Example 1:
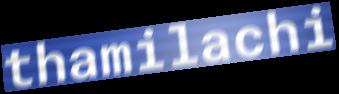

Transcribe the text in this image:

thamilachi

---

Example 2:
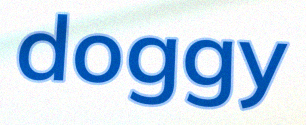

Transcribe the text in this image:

doggy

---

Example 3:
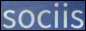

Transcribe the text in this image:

sociis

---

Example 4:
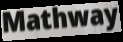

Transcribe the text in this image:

Mathway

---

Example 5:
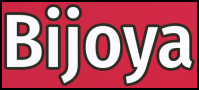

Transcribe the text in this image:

Bijoya